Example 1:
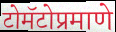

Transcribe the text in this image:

टोमॅटोप्रमाणे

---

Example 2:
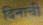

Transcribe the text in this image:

दिनाची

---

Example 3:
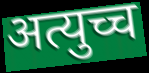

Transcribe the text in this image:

अत्युच्च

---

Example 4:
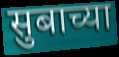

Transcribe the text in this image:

सुबाच्या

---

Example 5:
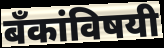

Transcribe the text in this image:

बँकांविषयी